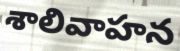
శాలివాహన